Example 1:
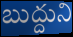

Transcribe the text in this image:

బుద్దుని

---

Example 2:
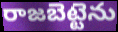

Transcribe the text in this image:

రాజబెట్టెను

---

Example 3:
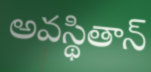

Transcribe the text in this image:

అవస్థితాన్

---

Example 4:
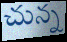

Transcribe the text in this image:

చున్న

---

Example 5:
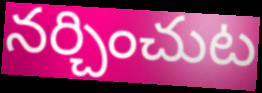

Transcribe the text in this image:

నర్చించుట